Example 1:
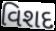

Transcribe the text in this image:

વિશદ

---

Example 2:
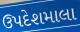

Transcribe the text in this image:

ઉપદેશમાલા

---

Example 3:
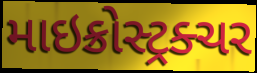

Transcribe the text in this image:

માઇક્રોસ્ટ્રક્ચર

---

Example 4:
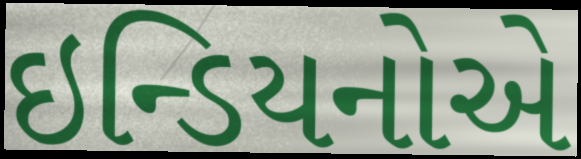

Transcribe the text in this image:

ઇન્ડિયનોએ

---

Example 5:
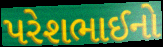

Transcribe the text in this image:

પરેશભાઈનો